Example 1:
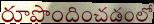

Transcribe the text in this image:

రూపొందించడంలో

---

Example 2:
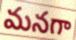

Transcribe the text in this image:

మనగా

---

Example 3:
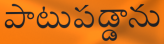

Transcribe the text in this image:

పాటుపడ్డాను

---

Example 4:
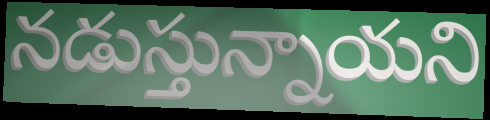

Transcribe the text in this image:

నడుస్తున్నాయని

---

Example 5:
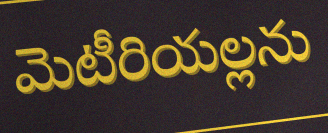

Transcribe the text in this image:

మెటీరియల్లను